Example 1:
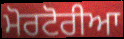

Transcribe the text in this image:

ਮੋਰਟੋਰੀਆ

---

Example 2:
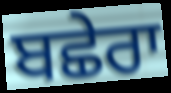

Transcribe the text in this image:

ਬਛੇਰਾ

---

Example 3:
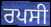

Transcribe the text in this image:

ਰਪਸੀ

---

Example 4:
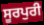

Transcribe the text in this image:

ਸੂਰਪੁਰੀ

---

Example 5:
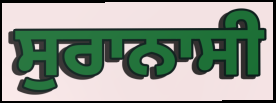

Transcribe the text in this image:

ਸੁਰਾਨਾਸੀ